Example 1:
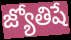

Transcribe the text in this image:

జ్యోతిషే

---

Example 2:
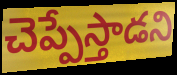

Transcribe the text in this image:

చెప్పేస్తాడని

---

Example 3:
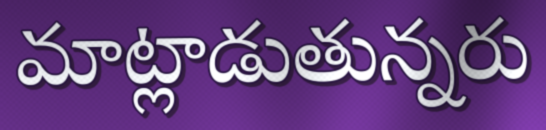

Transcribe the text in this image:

మాట్లాడుతున్నరు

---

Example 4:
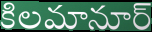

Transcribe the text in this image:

కిలమానూర్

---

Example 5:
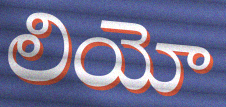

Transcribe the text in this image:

లియో